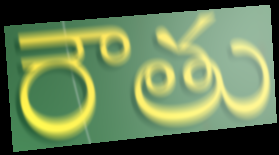
రౌతు